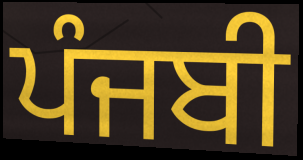
ਪੰਜਬੀ